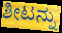
ಶೀಟನ್ನು